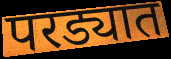
परड्यात